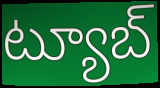
ట్యూబ్